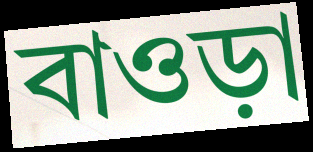
বাওড়া